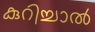
കുറിച്ചാൽ